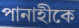
পানাহীকে